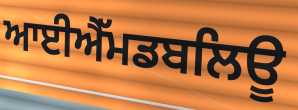
ਆਈਐੱਮਡਬਲਿਊ